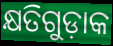
କ୍ଷତିଗୁଡ଼ାକ